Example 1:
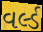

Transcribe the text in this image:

વર્લ્ડ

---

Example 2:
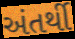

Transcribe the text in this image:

અંતર્થી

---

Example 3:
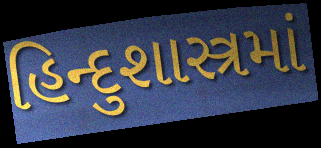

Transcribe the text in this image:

હિન્દુશાસ્ત્રમાં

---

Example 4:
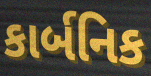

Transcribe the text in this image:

કાર્બનિક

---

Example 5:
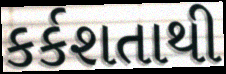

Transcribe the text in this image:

કર્કશતાથી